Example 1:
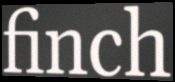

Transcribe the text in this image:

finch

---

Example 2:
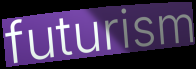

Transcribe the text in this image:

futurism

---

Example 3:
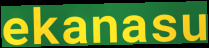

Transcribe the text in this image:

ekanasu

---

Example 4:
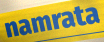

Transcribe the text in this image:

namrata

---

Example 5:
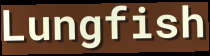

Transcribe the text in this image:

Lungfish